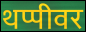
थप्पीवर